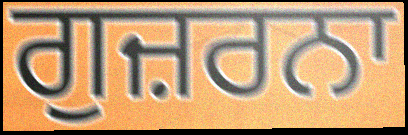
ਗੁਜ਼ਰਨਾ